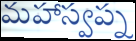
మహాస్వప్న